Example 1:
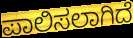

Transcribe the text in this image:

ಪಾಲಿಸಲಾಗಿದೆ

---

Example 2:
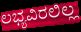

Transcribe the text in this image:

ಲಭ್ಯವಿರಲಿಲ್ಲ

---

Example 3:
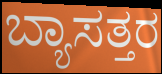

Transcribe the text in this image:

ಬ್ಯಾಸತ್ತರ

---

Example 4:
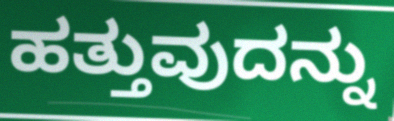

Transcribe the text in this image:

ಹತ್ತುವುದನ್ನು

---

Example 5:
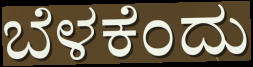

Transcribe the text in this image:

ಬೆಳಕೆಂದು